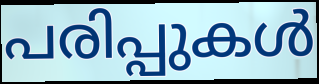
പരിപ്പുകൾ